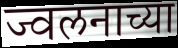
ज्वलनाच्या